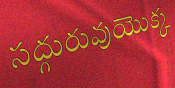
సద్గురువుయొక్క